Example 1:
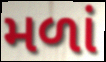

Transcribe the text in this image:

મળાં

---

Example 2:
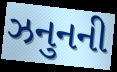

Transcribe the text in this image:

ઝનુનની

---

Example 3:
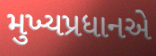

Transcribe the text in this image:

મુખ્યપ્રધાનએ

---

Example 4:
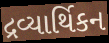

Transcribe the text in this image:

દ્રવ્યાર્થિકન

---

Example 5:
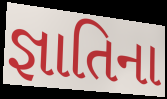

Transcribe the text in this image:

જ્ઞાતિના